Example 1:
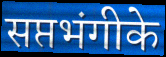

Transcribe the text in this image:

सप्तभंगीके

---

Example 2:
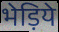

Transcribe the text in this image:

भेड़िये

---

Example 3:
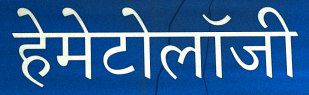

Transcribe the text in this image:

हेमेटोलॉजी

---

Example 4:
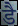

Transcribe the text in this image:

डै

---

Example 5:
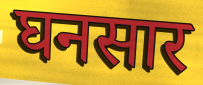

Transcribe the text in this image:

घनसार